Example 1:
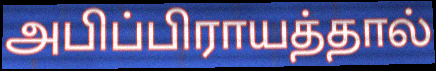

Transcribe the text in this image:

அபிப்பிராயத்தால்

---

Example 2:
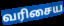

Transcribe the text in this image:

வரிசைய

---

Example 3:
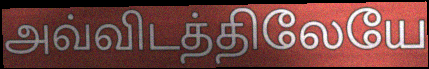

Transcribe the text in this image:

அவ்விடத்திலேயே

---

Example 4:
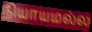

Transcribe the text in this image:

நியாயமல்ல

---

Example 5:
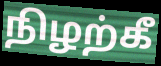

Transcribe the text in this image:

நிழற்கீ